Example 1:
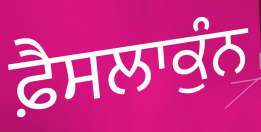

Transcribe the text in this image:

ਫ਼ੈਸਲਾਕੁੰਨ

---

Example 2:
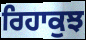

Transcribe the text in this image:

ਰਿਹਾਕੁਝ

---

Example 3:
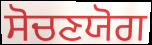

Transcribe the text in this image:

ਸੋਚਣਯੋਗ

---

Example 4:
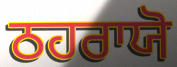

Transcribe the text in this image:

ਠਹਰਾਯੋ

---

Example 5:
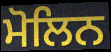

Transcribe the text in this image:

ਮੋਲਿਨ